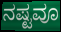
ನಷ್ಟವೂ